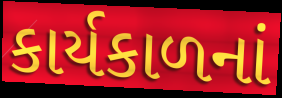
કાર્યકાળનાં